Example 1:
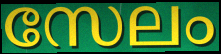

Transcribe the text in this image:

സേലം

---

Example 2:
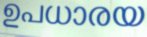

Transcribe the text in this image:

ഉപധാരയ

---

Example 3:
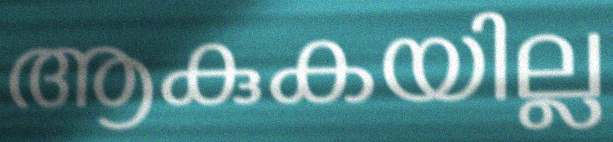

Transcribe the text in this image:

ആകുകയില്ല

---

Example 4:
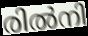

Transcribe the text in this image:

രിൽനി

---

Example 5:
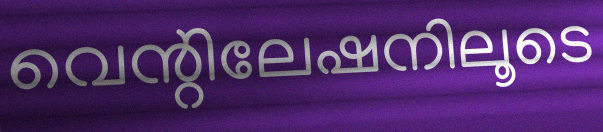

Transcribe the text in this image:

വെന്റിലേഷനിലൂടെ